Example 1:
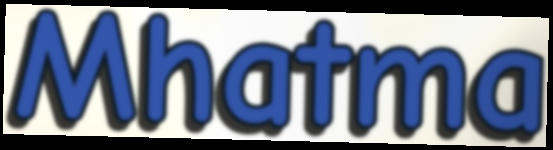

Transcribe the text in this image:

Mhatma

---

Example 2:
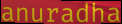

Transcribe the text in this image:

anuradha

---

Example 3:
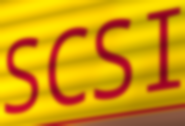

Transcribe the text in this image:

SCSI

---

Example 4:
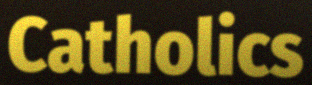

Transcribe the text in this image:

Catholics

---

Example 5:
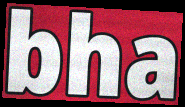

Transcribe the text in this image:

bha